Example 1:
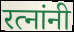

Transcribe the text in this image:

रत्नांनी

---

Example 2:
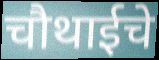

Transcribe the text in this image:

चौथाईचे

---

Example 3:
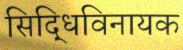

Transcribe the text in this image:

सिद्धिविनायक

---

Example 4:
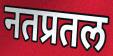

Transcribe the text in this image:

नतप्रतल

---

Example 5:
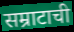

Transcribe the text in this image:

सम्राटाची